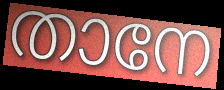
താനേ